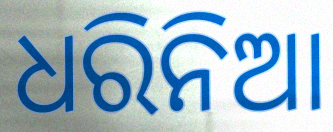
ଧରିନିଆ